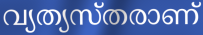
വ്യത്യസ്തരാണ്